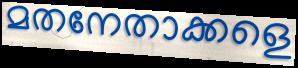
മതനേതാക്കളെ